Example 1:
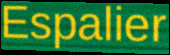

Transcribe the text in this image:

Espalier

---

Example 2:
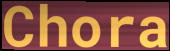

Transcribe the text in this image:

Chora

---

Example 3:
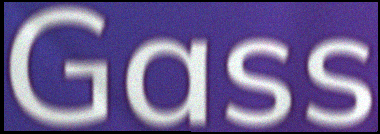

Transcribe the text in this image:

Gass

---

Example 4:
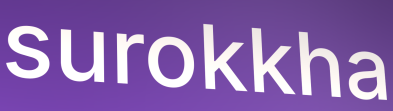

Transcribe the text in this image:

surokkha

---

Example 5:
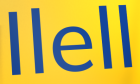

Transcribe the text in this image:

Ilell